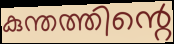
കുന്തത്തിന്റെ